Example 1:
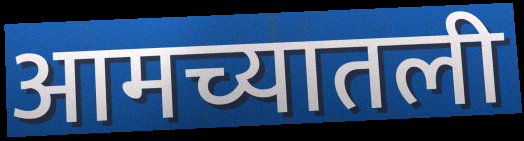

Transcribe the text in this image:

आमच्यातली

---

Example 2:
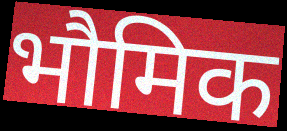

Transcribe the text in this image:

भौमिक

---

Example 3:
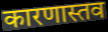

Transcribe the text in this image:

कारणास्तव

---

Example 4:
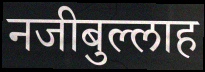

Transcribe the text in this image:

नजीबुल्लाह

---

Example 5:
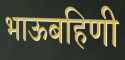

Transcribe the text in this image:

भाऊबहिणी